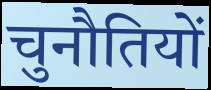
चुनौतियों